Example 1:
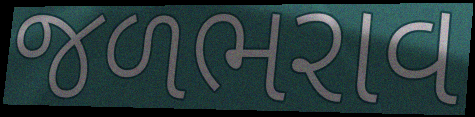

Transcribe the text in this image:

જળભરાવ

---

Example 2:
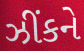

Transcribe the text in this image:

ઝીંકને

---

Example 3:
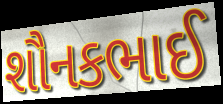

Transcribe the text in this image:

શૌનકભાઈ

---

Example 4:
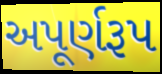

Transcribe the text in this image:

અપૂર્ણરૂપ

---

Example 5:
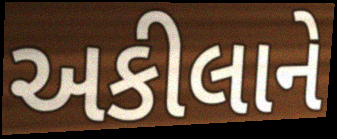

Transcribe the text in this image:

અકીલાને